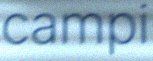
campi